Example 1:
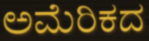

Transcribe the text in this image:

ಅಮೆರಿಕದ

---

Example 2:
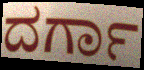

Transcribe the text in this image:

ದರ್ಗಾ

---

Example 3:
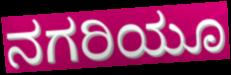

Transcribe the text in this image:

ನಗರಿಯೂ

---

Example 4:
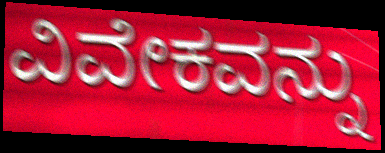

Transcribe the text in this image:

ವಿವೇಕವನ್ನು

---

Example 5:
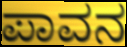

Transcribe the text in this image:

ಪಾವನ